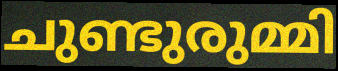
ചുണ്ടുരുമ്മി